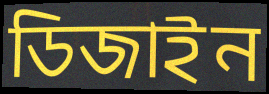
ডিজাইন